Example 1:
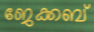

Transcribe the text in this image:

ജേക്കബ്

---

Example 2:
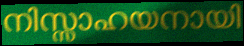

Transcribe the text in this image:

നിസ്സാഹയനായി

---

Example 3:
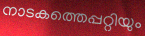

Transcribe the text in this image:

നാടകത്തെപ്പറ്റിയും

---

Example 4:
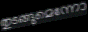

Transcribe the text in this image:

തുടങ്ങുമെന്നോ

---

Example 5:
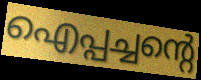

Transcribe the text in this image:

ഐപ്പച്ചന്റെ